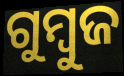
ଗୁମ୍ବୁଜ